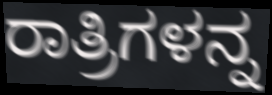
ರಾತ್ರಿಗಳನ್ನ